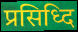
प्रसिध्दि